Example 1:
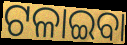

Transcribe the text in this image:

ଟଳାଇବା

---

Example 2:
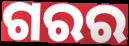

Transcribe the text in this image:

ଗରର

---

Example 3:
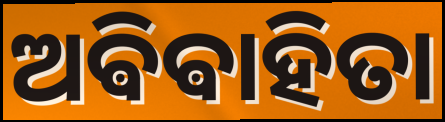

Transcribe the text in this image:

ଅଵିଵାହିତା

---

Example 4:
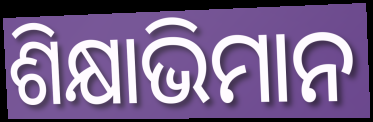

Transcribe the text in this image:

ଶିକ୍ଷାଭିମାନ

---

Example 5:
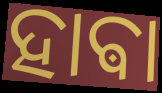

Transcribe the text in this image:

ହାଵା